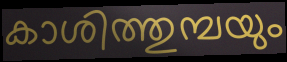
കാശിത്തുമ്പയും